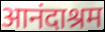
आनंदाश्रम